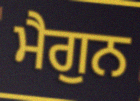
ਮੈਗੁਨ